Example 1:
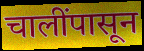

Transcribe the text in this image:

चालींपासून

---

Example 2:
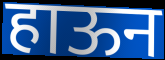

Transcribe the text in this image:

हाऊन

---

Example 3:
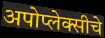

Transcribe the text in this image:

अपोप्लेक्सीचे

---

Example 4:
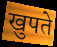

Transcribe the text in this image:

खुपते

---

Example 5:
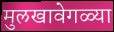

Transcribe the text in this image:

मुलखावेगळ्या